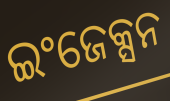
ଇଂଜେକ୍ସନ